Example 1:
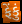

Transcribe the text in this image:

ફેંકું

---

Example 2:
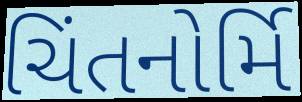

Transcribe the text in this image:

ચિંતનોર્મિ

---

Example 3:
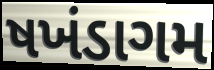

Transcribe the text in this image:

ષખંડાગમ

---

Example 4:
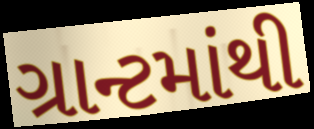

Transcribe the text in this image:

ગ્રાન્ટમાંથી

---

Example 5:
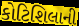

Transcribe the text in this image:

કોટિશિલાની